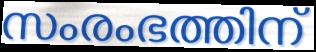
സംരംഭത്തിന്